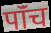
पॉंच